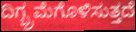
ದಿಗ್ಭ್ರಮೆಗೊಳಿಸುತ್ತದೆ